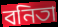
বনিতা